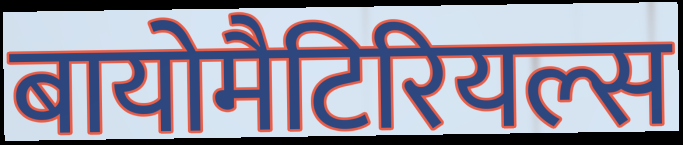
बायोमैटिरियल्स